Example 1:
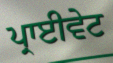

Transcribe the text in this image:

ਪ੍ਰਾਈਵੇਟ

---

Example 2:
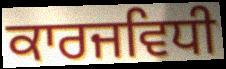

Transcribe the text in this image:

ਕਾਰਜਵਿਧੀ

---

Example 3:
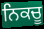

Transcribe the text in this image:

ਨਿਕਚੂ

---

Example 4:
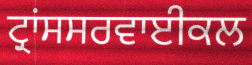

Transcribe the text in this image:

ਟ੍ਰਾਂਸਸਰਵਾਈਕਲ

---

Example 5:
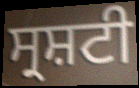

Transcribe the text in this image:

ਸ੍ਰਸ਼ਟੀ